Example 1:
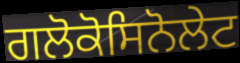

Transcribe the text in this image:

ਗਲੋਕੋਸਿਨੋਲੇਟ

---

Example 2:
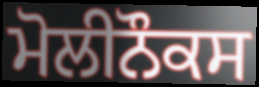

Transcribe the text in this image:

ਮੋਲੀਨੌਕਸ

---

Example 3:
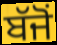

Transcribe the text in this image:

ਬੱਜੋਂ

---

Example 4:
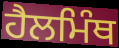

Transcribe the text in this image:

ਹੈਲਮਿੰਥ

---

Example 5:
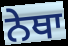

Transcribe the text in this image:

ਨੇਥਾ